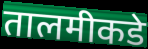
तालमीकडे